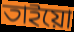
তাইয়ো